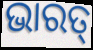
ଭାରତ୍